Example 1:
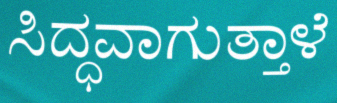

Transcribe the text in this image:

ಸಿದ್ಧವಾಗುತ್ತಾಳೆ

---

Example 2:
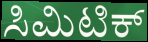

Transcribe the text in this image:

ಸಿಮಿಟಿಕ್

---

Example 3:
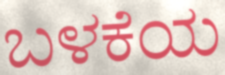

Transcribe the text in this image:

ಬಳಕೆಯ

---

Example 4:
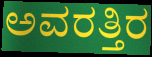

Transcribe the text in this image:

ಅವರತ್ತಿರ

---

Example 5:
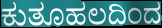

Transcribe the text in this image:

ಕುತೂಹಲದಿಂದ